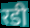
रडी